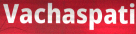
Vachaspati